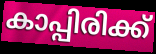
കാപ്പിരിക്ക്